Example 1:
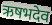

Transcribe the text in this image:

ऋषभदेव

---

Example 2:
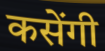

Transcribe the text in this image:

कसेंगी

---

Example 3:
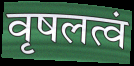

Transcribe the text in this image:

वृषलत्वं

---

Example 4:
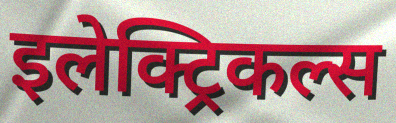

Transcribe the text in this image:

इलेक्ट्रिकल्स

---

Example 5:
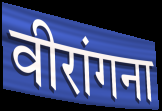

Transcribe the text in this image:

वीरांगना